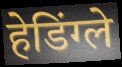
हेडिंग्‍ले